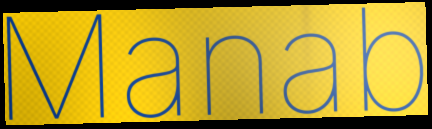
Manab